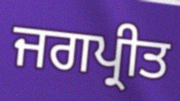
ਜਗਪ੍ਰੀਤ